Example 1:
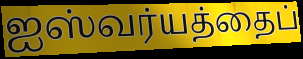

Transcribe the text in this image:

ஐஸ்வர்யத்தைப்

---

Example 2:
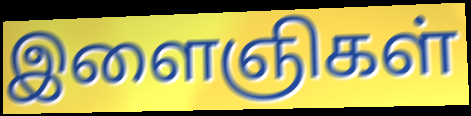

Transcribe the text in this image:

இளைஞிகள்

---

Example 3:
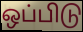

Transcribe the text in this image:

ஒப்பிடு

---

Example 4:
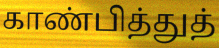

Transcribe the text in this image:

காண்பித்துத்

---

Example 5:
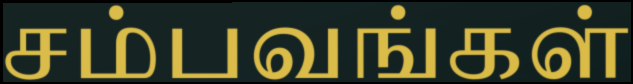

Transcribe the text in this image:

சம்பவங்கள்